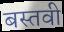
बस्तवी